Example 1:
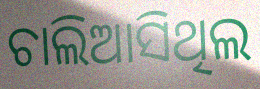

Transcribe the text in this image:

ଚାଲିଆସିଥିଲ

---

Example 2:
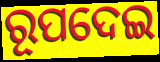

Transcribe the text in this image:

ରୂପଦେଇ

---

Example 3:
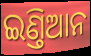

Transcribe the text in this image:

ଇଣ୍ତିଆନ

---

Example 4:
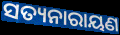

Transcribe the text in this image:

ସତ୍ୟନାରାୟଣ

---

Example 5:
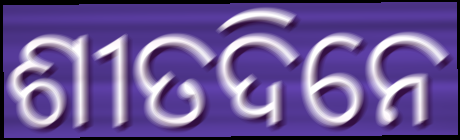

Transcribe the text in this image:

ଶୀତଦିନେ